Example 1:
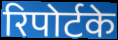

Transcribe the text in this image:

रिपोर्टके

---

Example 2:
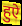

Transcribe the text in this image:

हुऐ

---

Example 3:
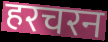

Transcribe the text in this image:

हरचरन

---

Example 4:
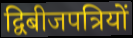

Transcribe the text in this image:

द्विबीजपत्रियों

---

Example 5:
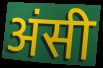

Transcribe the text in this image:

अंसी